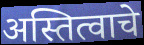
अस्तित्वाचे